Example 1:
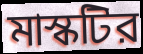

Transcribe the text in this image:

মাস্কটির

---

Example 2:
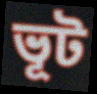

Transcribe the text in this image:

ভূট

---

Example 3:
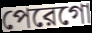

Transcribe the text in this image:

পেরেগো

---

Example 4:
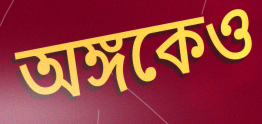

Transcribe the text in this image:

অঙ্গকেও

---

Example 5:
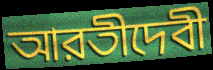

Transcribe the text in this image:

আরতীদেবী